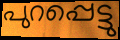
പുറപ്പെട്ടു